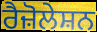
ਰੈਜ਼ੋਲੇਸ਼ਨ